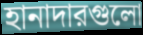
হানাদারগুলো